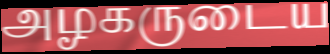
அழகருடைய